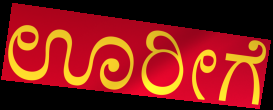
ಊರೀಗೆ